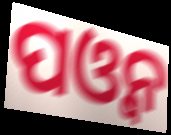
ପଓ୍ବନ